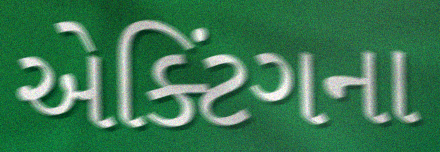
એક્ટિંગના